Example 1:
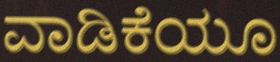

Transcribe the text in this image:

ವಾಡಿಕೆಯೂ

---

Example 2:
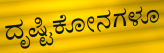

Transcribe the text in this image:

ದೃಷ್ಟಿಕೋನಗಳೂ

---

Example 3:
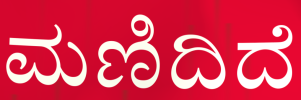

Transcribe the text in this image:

ಮಣಿದಿದೆ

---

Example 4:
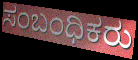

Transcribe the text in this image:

ಸಂಬಂಧಿಕರು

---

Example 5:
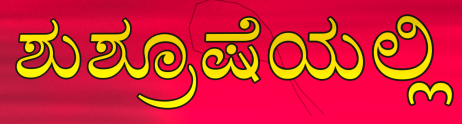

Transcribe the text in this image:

ಶುಶ್ರೂಷೆಯಲ್ಲಿ